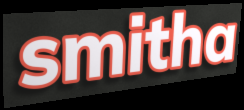
smitha